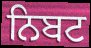
ਨਿਬਟ